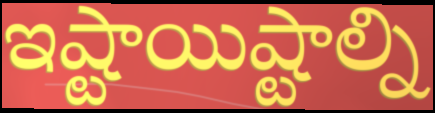
ఇష్టాయిష్టాల్ని